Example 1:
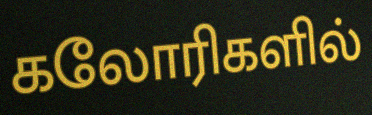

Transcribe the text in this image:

கலோரிகளில்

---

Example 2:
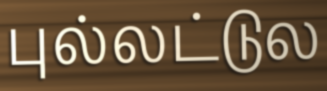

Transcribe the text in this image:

புல்லட்டுல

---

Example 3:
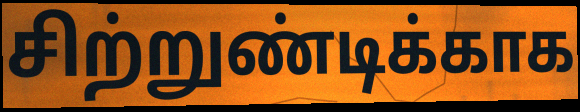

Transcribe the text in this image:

சிற்றுண்டிக்காக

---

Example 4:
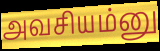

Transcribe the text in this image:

அவசியம்னு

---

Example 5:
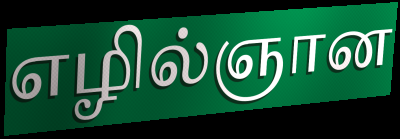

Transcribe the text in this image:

எழில்ஞான